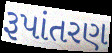
રૂપાંતરણ